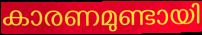
കാരണമുണ്ടായി